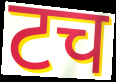
टच